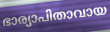
ഭാര്യാപിതാവായ